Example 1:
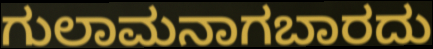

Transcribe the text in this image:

ಗುಲಾಮನಾಗಬಾರದು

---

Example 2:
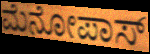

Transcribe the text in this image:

ಮೆನೋಪಾಸ್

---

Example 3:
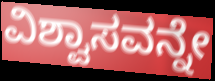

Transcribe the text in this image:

ವಿಶ್ವಾಸವನ್ನೇ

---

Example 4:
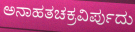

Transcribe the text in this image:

ಅನಾಹತಚಕ್ರವಿರ್ಪುದು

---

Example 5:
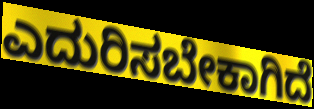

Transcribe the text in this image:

ಎದುರಿಸಬೇಕಾಗಿದೆ